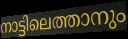
നാട്ടിലെത്താനും